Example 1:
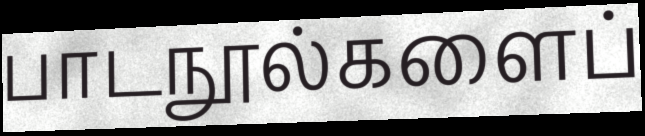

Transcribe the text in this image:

பாடநூல்களைப்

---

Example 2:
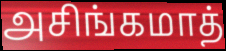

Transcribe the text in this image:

அசிங்கமாத்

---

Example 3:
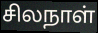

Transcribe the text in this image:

சிலநாள்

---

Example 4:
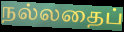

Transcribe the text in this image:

நல்லதைப்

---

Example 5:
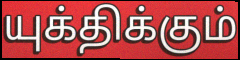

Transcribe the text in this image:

யுக்திக்கும்